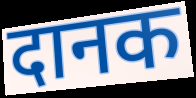
दानक